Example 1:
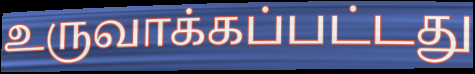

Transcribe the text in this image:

உருவாக்கப்பட்டது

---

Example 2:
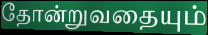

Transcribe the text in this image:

தோன்றுவதையும்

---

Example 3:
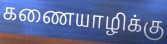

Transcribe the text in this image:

கணையாழிக்கு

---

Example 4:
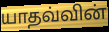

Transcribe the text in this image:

யாதவ்வின்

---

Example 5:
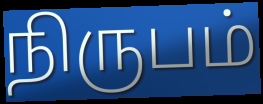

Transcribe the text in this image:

நிருபம்